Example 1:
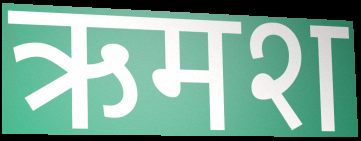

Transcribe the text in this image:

ऋमश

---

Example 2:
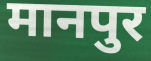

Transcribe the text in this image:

मानपुर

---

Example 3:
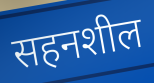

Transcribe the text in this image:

सहनशील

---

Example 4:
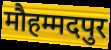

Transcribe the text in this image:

मौहम्मदपुर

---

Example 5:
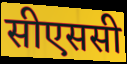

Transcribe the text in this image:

सीएससी